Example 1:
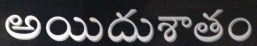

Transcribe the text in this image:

అయిదుశాతం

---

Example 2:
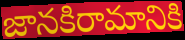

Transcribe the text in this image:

జానకిరామానికి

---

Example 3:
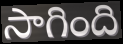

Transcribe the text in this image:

సాగింది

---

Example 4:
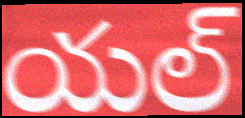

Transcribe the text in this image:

యల్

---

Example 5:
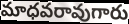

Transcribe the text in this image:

మాధవరావుగారు